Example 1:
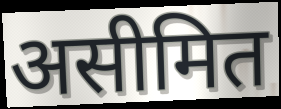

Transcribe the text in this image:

असीमित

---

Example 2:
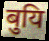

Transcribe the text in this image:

बुयि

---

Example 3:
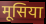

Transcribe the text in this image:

मूसिया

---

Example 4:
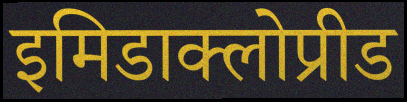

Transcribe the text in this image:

इमिडाक्लोप्रीड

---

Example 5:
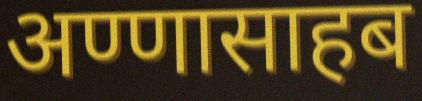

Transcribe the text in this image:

अण्णासाहब